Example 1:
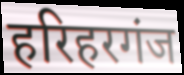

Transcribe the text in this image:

हरिहरगंज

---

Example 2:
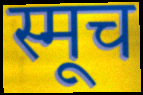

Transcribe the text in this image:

स्मूच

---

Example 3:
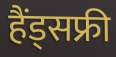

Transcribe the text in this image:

हैंड्सफ्री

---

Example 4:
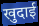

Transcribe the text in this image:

खुदाई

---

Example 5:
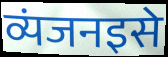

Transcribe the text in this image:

व्यंजनइसे